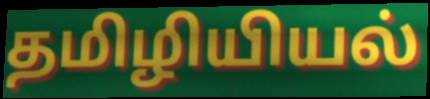
தமிழியியல்